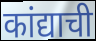
कांद्याची